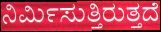
ನಿರ್ಮಿಸುತ್ತಿರುತ್ತದೆ